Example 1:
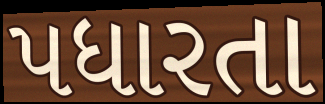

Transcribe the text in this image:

પધારતા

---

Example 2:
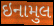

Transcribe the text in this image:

ઇનામુલ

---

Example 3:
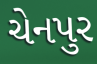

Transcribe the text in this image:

ચેનપુર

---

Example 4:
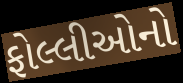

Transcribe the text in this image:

ફોલ્લીઓનો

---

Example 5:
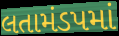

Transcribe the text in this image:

લતામંડપમાં